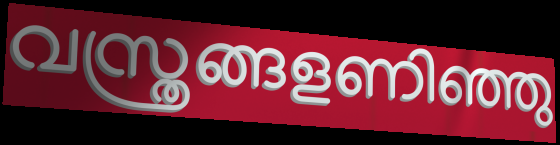
വസ്ത്രങ്ങളണിഞ്ഞു